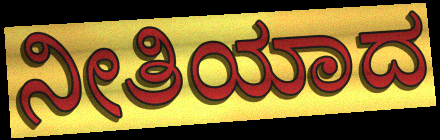
ನೀತಿಯಾದ